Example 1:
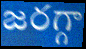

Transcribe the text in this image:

జరగ్గా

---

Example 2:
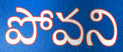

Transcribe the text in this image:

పోవని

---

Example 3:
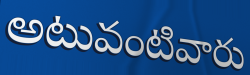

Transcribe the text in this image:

అటువంటివారు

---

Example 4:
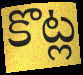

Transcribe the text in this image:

కొట్ల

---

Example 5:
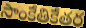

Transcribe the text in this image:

సాంకేతికేతర